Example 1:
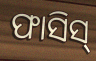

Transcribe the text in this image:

ଫାସିସ୍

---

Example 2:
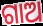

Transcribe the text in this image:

ଗାଅ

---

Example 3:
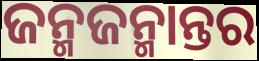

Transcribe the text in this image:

ଜନ୍ମଜନ୍ମାନ୍ତର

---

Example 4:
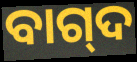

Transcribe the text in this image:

ବାଗ୍‌ଦ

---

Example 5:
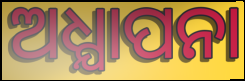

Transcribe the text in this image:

ଅଧ୍ଯାପନା